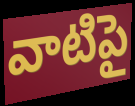
వాటిపై